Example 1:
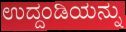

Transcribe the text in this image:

ಉದ್ದಂಡಿಯನ್ನು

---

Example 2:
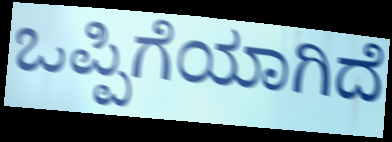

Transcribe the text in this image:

ಒಪ್ಪಿಗೆಯಾಗಿದೆ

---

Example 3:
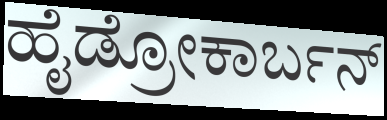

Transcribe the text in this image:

ಹೈಡ್ರೋಕಾರ್ಬನ್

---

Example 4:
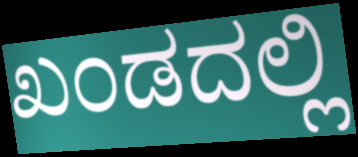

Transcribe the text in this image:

ಖಂಡದಲ್ಲಿ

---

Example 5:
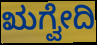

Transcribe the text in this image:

ಋಗ್ವೇದಿ